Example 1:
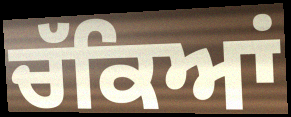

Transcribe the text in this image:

ਚੱਕਿਆਂ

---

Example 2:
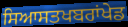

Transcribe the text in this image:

ਸਿਆਸਤਖਬਰਾਂਖੇਡ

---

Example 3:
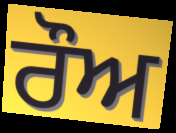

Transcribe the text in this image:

ਰੌਅ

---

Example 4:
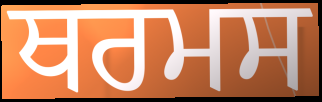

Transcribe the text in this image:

ਥਰਮਸ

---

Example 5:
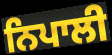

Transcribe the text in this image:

ਨਿਪਾਲੀ